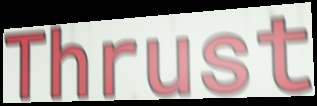
Thrust